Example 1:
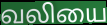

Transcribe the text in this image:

வலியை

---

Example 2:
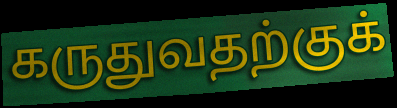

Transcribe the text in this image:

கருதுவதற்குக்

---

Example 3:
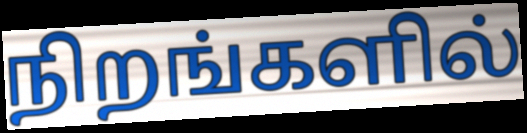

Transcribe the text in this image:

நிறங்களில்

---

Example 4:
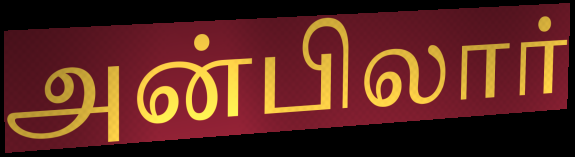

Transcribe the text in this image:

அன்பிலார்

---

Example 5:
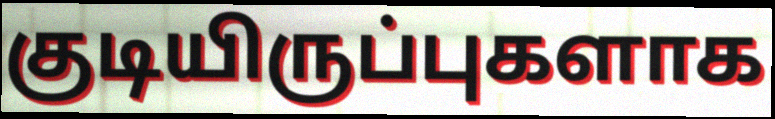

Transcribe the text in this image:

குடியிருப்புகளாக